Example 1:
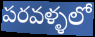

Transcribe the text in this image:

పరవళ్ళలో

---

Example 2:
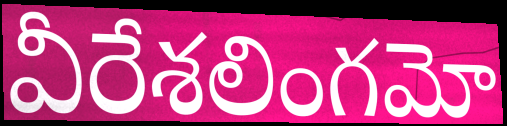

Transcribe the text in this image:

వీరేశలింగమో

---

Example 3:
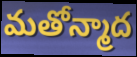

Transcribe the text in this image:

మతోన్మాద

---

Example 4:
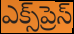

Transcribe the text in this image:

ఎక్స్‌ప్రెస్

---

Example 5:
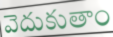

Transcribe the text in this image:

వెదుకుతాం